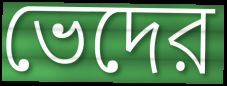
ভেদের